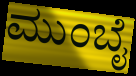
ಮುಂಬೈ